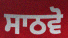
ਸਾਠਵੋ